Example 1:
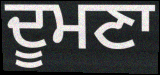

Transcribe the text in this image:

ਦੂਮਣਾ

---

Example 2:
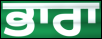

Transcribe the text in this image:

ਭਾਰਾ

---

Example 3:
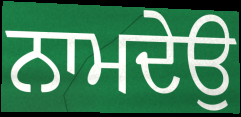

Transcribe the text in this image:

ਨਾਮਦੇਉ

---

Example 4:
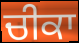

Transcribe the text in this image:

ਚੀਕਾ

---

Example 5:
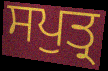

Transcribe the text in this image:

ਸਪੁਤ੍ਰ